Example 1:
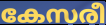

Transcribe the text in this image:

കേസരീ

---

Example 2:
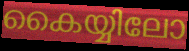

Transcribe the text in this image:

കൈയ്യിലോ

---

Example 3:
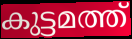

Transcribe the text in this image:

കുട്ടമത്ത്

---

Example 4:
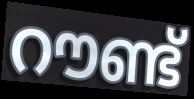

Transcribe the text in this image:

റൗണ്ട്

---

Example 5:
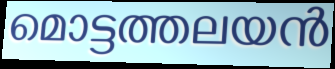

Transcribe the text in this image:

മൊട്ടത്തലയൻ